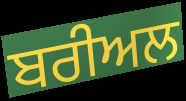
ਬਰੀਅਲ